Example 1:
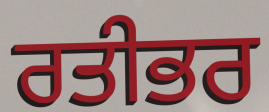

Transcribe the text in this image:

ਰਤੀਭਰ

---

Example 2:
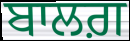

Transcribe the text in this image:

ਬਾਲਗ਼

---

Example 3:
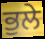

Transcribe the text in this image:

ਭੁਲੇ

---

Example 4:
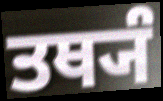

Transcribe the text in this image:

ਤਥ੍ਯੰ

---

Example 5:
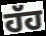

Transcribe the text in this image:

ਹੱਹ